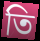
তি